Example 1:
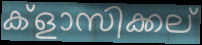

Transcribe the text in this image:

ക്ളാസിക്കല്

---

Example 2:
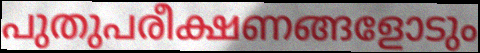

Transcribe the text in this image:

പുതുപരീക്ഷണങ്ങളോടും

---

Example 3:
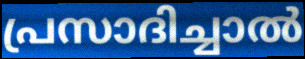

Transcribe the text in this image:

പ്രസാദിച്ചാൽ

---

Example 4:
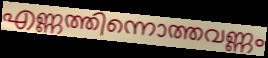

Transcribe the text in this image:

എണ്ണത്തിന്നൊത്തവണ്ണം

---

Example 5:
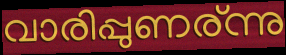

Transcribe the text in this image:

വാരിപ്പുണര്ന്നു